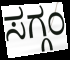
ಸಗ್ಗಂ